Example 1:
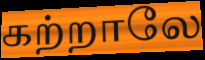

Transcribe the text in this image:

கற்றாலே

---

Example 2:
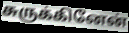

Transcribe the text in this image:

சுருக்கினேன்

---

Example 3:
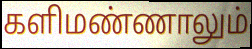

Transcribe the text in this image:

களிமண்ணாலும்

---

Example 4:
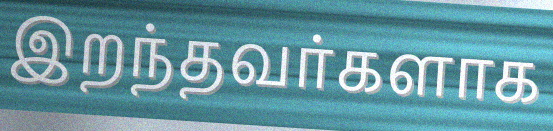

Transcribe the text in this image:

இறந்தவர்களாக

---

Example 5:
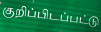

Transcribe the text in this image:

குறிப்பிடப்பட்டு